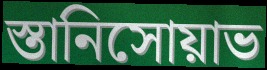
স্তানিসোয়াভ